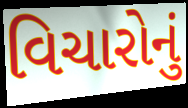
વિચારોનું